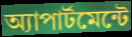
অ্যাপার্টমেন্টে